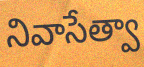
నివాసేత్వా